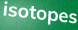
isotopes